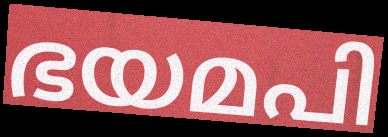
ഭയമപി